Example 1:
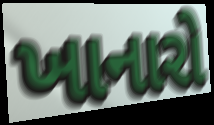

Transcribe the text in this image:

ખાનારો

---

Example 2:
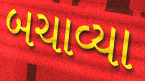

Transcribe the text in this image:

બચાવ્યા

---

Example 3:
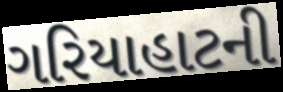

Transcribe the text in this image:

ગરિયાહાટની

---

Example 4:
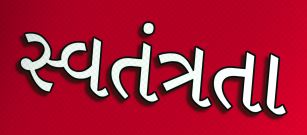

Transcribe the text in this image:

સ્વતંત્રતા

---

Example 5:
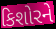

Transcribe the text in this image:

કિશોરને